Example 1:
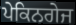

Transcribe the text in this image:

ਪੇਕਿਨਗੇਜ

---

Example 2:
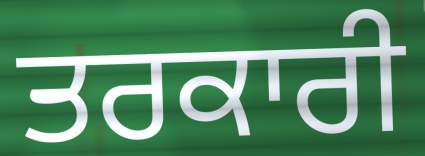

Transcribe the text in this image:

ਤਰਕਾਰੀ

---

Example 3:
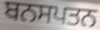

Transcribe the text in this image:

ਬਨਸਪਤਨ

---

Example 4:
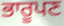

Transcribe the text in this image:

ਭਾਰੂਪਣ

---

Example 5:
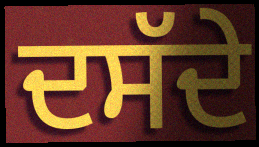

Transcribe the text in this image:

ਦਸੱਦੇ